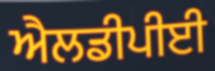
ਐਲਡੀਪੀਈ